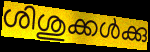
ശിശുക്കൾക്കു